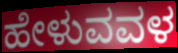
ಹೇಳುವವಳ